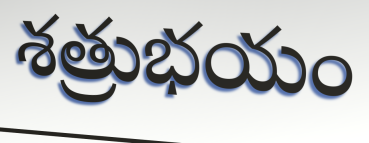
శత్రుభయం